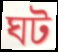
ঘট